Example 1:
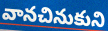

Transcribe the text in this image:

వానచినుకుని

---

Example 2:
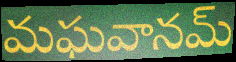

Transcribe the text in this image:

మఘవానమ్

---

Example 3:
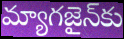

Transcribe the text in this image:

మ్యాగజైన్‌కు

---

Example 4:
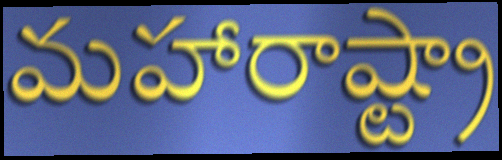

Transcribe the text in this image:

మహారాష్ట్రా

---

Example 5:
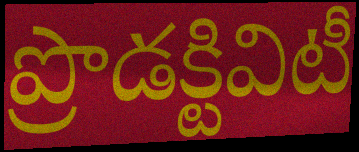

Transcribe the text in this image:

ప్రొడక్టివిటీ